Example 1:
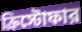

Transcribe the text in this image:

ক্রিস্টোফার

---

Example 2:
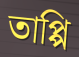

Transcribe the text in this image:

তাপ্পি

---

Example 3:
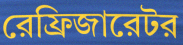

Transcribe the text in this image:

রেফ্রিজারেটর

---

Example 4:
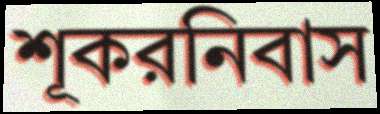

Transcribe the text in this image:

শূকরনিবাস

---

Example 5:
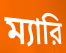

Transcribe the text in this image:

ম্যারি